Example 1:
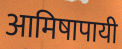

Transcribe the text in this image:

आमिषापायी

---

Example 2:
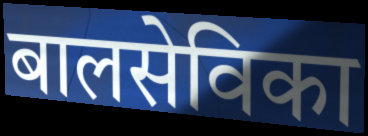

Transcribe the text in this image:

बालसेविका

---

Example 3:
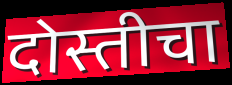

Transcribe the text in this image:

दोस्तीचा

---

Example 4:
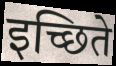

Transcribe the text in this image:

इच्छिते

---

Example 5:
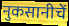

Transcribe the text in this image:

नुकसानीचें